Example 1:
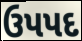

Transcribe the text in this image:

ઉપપદ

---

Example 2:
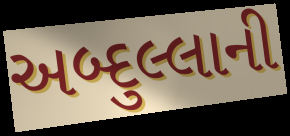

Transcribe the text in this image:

અબ્દુલ્લાની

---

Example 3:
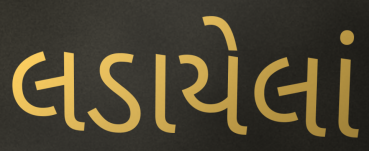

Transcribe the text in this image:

લડાયેલાં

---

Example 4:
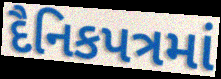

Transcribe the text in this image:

દૈનિકપત્રમાં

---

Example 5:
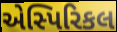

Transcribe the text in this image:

એસ્પિરિકલ